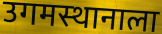
उगमस्थानाला